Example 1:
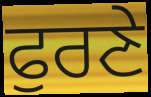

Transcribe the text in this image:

ਫੁਰਣੇ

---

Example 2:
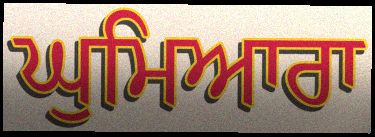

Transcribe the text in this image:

ਘੁਮਿਆਰਾ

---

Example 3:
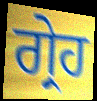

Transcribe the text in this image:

ਗ੍ਰੇਹ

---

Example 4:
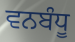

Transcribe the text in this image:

ਵਨਬੰਧੂ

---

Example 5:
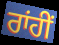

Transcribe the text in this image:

ਰਾਂਹੀਂ